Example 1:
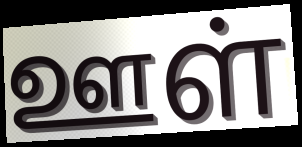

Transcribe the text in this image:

ஊள்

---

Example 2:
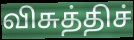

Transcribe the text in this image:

விசுத்திச்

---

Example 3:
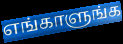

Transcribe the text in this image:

எங்காளுங்க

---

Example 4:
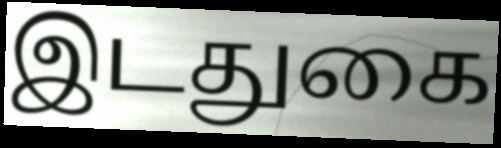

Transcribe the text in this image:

இடதுகை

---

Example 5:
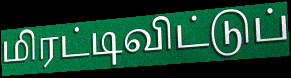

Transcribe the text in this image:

மிரட்டிவிட்டுப்